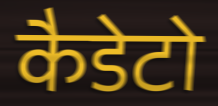
कैडेटो